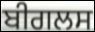
ਬੀਗਲਸ